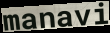
manavi